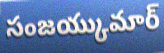
సంజయ్కుమార్